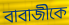
বাবাজীকে